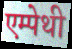
एम्पेथी